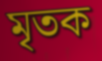
মৃতক